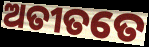
ଅତୀତତେ